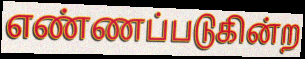
எண்ணப்படுகின்ற